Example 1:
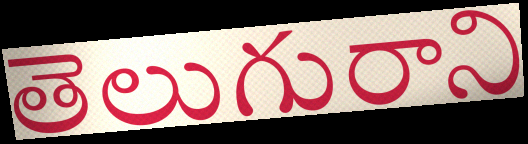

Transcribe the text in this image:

తెలుగురాని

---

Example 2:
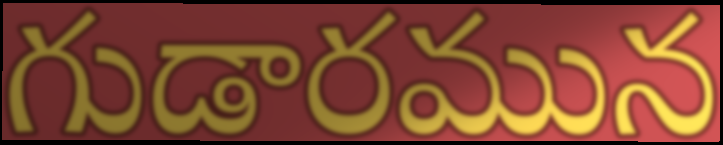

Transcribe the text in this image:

గుడారమున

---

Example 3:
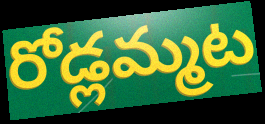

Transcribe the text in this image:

రోడ్లమ్మట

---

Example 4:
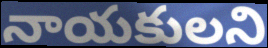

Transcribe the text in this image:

నాయకులని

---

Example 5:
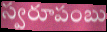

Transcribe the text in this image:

స్వరూపంబు